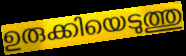
ഉരുക്കിയെടുത്തു